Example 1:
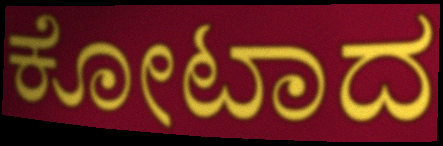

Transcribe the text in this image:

ಕೋಟಾದ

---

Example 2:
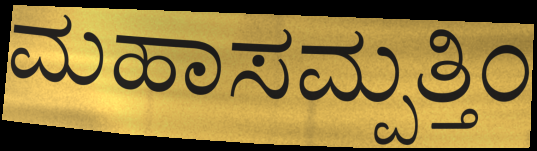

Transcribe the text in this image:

ಮಹಾಸಮ್ಪತ್ತಿಂ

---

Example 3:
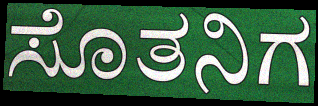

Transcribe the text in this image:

ಸೊತನಿಗ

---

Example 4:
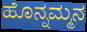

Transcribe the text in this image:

ಹೊನ್ನಮ್ಮನ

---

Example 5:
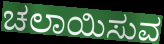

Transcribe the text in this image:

ಚಲಾಯಿಸುವ